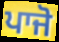
ਪਾਜੋ